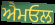
ਐਮਓਲ